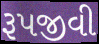
રૂપજીવી